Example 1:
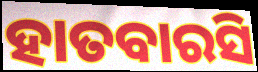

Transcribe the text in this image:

ହାତବାରସି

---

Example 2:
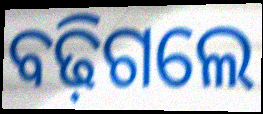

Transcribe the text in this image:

ବଢ଼ିଗଲେ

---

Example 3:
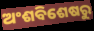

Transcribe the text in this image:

ଅଂଶବିଶେଷରୁ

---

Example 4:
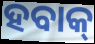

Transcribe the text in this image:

ହବାକ୍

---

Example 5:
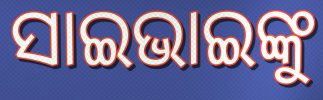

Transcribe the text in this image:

ସାଇଭାଇଙ୍କୁ